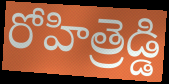
రోహిత్రెడ్డి